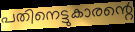
പതിനെട്ടുകാരന്റെ